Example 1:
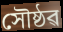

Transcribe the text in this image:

সৌষ্ঠৱ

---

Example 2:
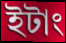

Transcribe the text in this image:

ইটাং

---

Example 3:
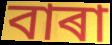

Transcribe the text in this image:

বাৰা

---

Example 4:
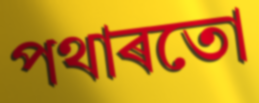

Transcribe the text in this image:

পথাৰতো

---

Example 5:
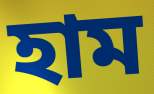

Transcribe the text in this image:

হাম